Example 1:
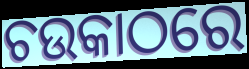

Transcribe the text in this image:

ଚଉକାଠରେ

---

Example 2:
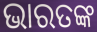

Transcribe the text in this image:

ଭାରତଙ୍କ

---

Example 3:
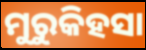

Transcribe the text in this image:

ମୁରୁକିହସା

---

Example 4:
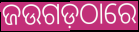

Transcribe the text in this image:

ଜଉଗଡ଼ଠାରେ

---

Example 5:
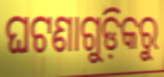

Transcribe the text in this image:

ଘଟଣାଗୁଡ଼ିକରୁ